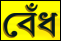
বেঁধ